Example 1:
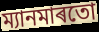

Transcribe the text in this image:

ম্যানমাৰতো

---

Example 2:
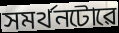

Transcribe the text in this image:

সমৰ্থনটোৱে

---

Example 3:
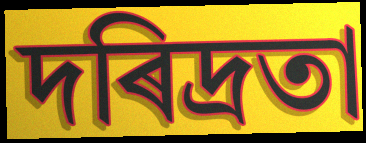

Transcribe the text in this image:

দৰিদ্ৰতা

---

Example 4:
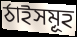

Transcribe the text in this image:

ঠাইসমূহ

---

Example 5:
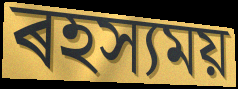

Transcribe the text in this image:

ৰহস্যময়